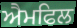
ਐਮਫਿਲ